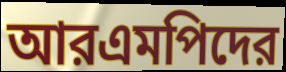
আরএমপিদের